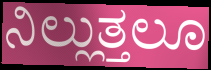
ನಿಲ್ಲುತ್ತಲೂ